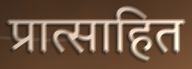
प्रात्साहित